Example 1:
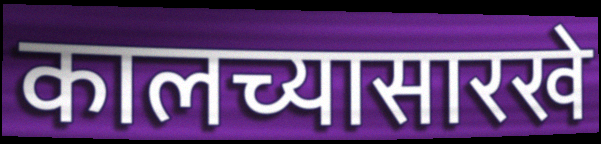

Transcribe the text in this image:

कालच्यासारखे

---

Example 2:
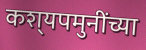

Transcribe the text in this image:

कश्यपमुनींच्या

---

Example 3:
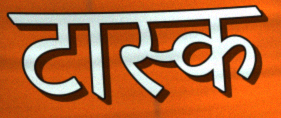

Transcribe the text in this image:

टास्क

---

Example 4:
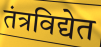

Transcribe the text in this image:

तंत्रविद्येत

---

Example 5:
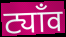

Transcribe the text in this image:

ट्याँव